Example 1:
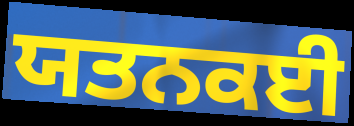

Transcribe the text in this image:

ਯਤਨਕਈ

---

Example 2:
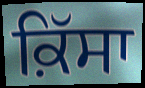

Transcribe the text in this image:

ਕ਼ਿੱਸਾ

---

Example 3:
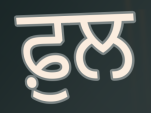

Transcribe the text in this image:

ਫ਼ੁਲ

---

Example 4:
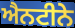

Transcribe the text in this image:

ਐਨਟੀਨੇ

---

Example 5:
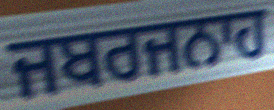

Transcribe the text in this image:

ਜਬਰਜਨਾਹ